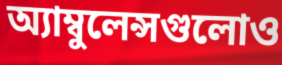
অ্যাম্বুলেন্সগুলোও